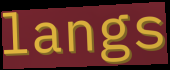
langs